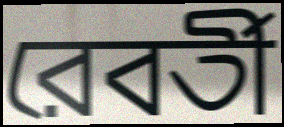
রেবর্তী